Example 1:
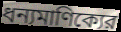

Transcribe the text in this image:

ধন্যমাণিক্যের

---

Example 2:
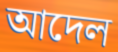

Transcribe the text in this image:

আদেল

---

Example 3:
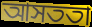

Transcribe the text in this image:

আসততা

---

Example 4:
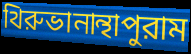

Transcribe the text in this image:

থিরুভানান্থাপুরাম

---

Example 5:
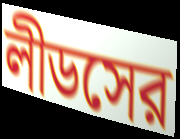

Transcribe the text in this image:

লীডসের